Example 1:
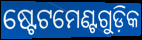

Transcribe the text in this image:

ଷ୍ଟେଟମେଣ୍ଟଗୁଡ଼ିକ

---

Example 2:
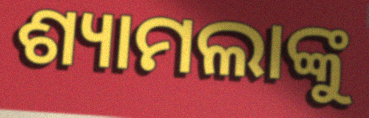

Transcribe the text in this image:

ଶ୍ୟାମଲାଙ୍କୁ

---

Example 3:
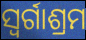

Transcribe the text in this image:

ସ୍ୱର୍ଗାଶ୍ରମ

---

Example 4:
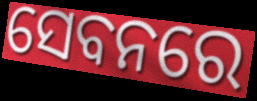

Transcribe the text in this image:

ସେବନରେ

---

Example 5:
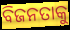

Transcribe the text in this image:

ବିଜନତାକୁ